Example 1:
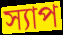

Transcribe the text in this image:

স্যাপ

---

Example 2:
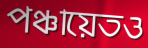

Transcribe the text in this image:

পঞ্চায়েতও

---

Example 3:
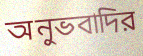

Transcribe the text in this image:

অনুভবাদির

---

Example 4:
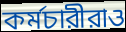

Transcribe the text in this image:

কর্মচারীরাও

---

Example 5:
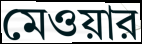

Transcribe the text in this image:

মেওয়ার